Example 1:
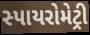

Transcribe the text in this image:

સ્પાયરોમેટ્રી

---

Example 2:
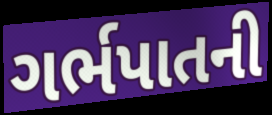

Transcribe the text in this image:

ગર્ભપાતની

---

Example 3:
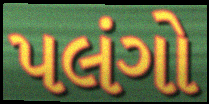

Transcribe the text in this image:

પલંગો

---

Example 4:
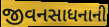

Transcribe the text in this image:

જીવનસાધનાની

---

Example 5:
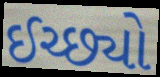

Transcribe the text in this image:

ઈચ્છ્યો